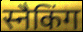
स्नैकिंग